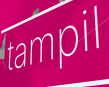
tampil